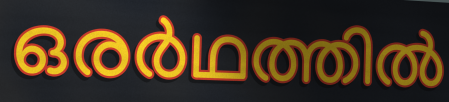
ഒരർഥത്തിൽ